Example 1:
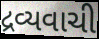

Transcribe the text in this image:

દ્રવ્યવાચી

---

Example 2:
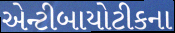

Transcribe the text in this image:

એન્ટીબાયોટીકના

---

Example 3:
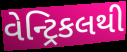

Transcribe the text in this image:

વેન્ટ્રિકલથી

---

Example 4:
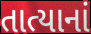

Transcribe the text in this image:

તાત્યાનાં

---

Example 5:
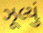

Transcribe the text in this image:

ઝૂલ્યું